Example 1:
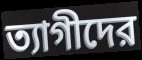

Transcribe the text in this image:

ত্যাগীদের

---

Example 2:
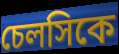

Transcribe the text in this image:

চেলসিকে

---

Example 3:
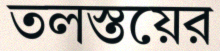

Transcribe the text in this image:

তলস্তয়ের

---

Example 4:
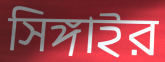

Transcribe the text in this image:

সিঙ্গাইর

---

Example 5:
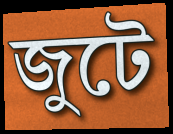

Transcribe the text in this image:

জুটে